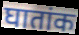
घातांक